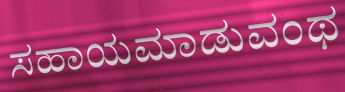
ಸಹಾಯಮಾಡುವಂಥ